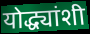
योद्ध्यांशी